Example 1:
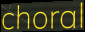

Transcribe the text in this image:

choral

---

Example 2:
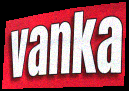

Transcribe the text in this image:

vanka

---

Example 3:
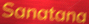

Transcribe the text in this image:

Sanatana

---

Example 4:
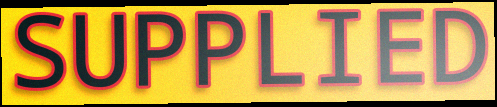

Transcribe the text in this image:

SUPPLIED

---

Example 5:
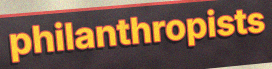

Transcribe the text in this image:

philanthropists